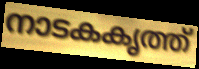
നാടകകൃത്ത്